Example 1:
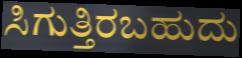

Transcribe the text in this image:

ಸಿಗುತ್ತಿರಬಹುದು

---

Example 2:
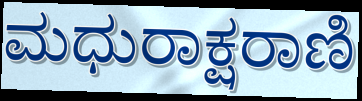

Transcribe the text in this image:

ಮಧುರಾಕ್ಷರಾಣಿ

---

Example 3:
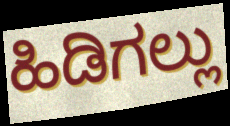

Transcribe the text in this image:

ಹಿಡಿಗಲ್ಲು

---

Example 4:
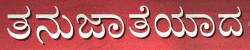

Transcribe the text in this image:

ತನುಜಾತೆಯಾದ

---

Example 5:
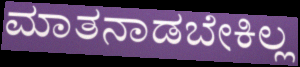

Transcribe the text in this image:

ಮಾತನಾಡಬೇಕಿಲ್ಲ